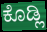
ಕೊಡ್ಲಿ